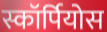
स्कॉर्पियोस